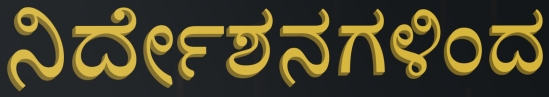
ನಿರ್ದೇಶನಗಳಿಂದ